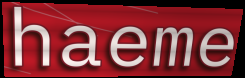
haeme